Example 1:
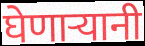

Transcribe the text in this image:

घेणाऱ्यानी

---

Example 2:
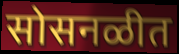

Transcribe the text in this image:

सोसनळीत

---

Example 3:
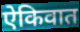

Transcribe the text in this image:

ऐकिवात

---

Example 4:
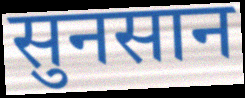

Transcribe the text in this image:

सुनसान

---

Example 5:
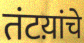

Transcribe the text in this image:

तंटय़ांचे